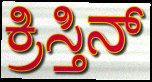
ಕ್ರಿಸ್ತಿನ್